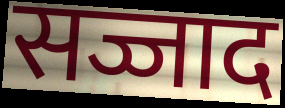
सज्जाद